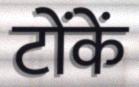
टोंकें